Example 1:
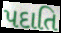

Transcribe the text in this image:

પદાતિ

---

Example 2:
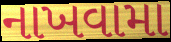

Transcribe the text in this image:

નાખવામા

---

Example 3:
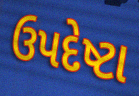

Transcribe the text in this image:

ઉપદેષ્ટા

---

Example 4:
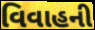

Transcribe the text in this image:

વિવાહની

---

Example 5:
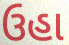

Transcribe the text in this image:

ઉહા